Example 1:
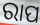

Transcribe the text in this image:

ରାପ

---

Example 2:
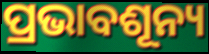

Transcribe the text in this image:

ପ୍ରଭାବଶୂନ୍ୟ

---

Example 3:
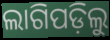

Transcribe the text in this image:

ଲାଗିପଡ଼ିଲୁ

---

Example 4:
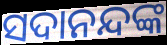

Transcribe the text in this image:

ସଦାନନ୍ଦଙ୍କ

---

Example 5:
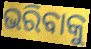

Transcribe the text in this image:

ଭରିବାକୁ